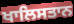
ਖਾਲਿਸਤਾਨ